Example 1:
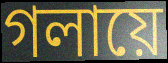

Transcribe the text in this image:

গলায়ে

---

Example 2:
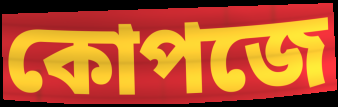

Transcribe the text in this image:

কোপজে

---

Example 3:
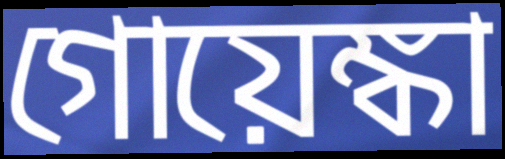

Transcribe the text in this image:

গোয়েঙ্কা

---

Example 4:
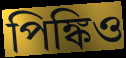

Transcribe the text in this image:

পিঙ্কিও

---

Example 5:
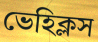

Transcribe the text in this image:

ভেহিক্লস